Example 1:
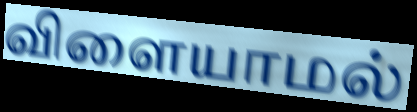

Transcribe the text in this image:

விளையாமல்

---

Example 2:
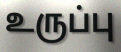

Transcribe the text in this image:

உருப்பு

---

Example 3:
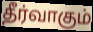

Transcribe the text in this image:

தீர்வாகும்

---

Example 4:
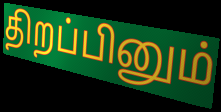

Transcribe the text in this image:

திறப்பினும்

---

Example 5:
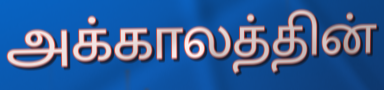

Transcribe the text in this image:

அக்காலத்தின்